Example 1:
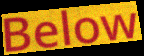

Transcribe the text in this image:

Below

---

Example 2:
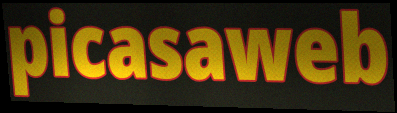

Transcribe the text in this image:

picasaweb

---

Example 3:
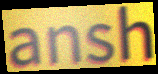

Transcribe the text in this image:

ansh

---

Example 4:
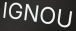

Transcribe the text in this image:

IGNOU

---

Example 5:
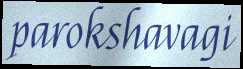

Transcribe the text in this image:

parokshavagi